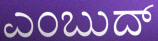
ಎಂಬುದ್